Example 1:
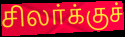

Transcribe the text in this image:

சிலர்க்குச்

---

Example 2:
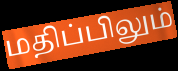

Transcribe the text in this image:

மதிப்பிலும்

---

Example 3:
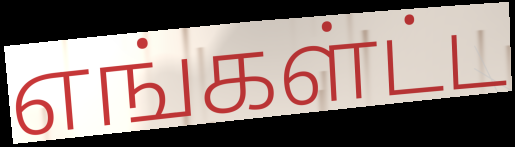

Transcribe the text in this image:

எங்கள்ட்ட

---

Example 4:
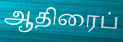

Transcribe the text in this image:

ஆதிரைப்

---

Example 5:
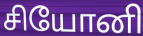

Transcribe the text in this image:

சியோனி